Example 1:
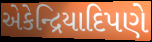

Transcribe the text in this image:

એકેન્દ્રિયાદિપણે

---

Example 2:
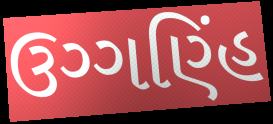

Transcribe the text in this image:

ઉગ્ગણ્હિં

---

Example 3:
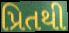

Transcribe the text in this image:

પ્રિતથી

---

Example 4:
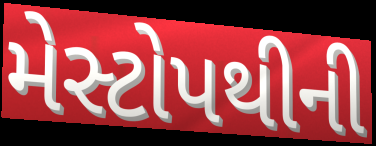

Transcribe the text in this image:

મેસ્ટોપથીની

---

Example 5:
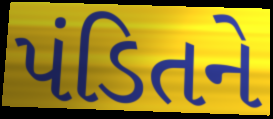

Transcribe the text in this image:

પંડિતને